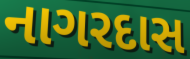
નાગરદાસ